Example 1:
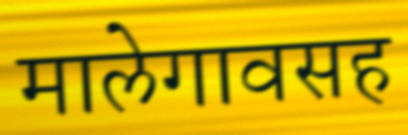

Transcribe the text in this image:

मालेगावसह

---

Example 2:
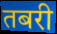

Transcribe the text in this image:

तबरी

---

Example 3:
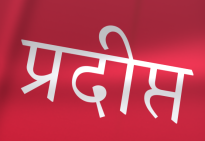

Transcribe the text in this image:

प्रदीप्त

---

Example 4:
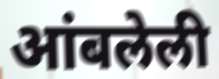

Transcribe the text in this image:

आंबलेली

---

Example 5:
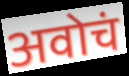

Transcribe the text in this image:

अवोचं